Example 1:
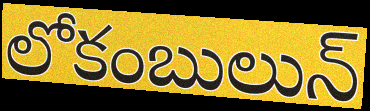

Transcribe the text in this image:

లోకంబులున్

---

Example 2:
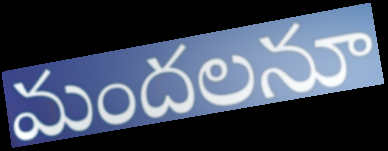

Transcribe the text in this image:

మందలనూ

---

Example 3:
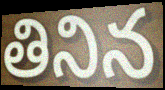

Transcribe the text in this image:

తినిన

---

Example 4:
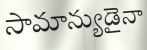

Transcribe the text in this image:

సామాన్యుడైనా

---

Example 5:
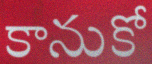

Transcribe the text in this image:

కానుకో